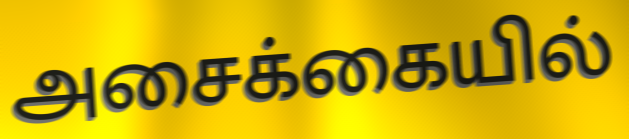
அசைக்கையில்